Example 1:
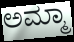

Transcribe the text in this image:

ಅಮ್ಮಾ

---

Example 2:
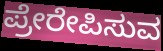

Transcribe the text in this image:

ಪ್ರೇರೇಪಿಸುವ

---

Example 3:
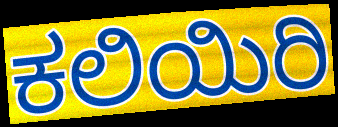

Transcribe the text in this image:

ಕಲಿಯಿರಿ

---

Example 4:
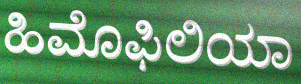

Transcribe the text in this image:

ಹಿಮೊಫಿಲಿಯಾ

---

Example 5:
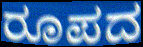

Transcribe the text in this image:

ರೂಪದ